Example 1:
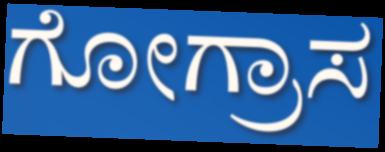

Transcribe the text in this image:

ಗೋಗ್ರಾಸ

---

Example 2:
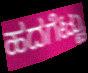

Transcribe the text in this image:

ಹದಗೆಟ್ಟು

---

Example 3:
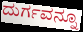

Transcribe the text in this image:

ದುರ್ಗವನ್ನೂ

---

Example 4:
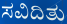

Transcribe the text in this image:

ಸವಿದಿತು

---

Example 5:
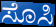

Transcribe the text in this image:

ಸೊಸಿ